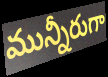
మున్నీరుగా